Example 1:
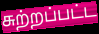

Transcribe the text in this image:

சுற்றப்பட்ட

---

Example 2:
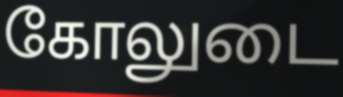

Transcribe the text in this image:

கோலுடை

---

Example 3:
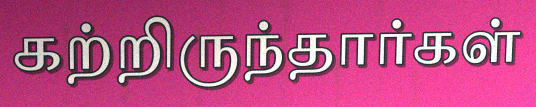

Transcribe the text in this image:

கற்றிருந்தார்கள்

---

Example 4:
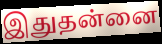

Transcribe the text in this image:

இதுதன்னை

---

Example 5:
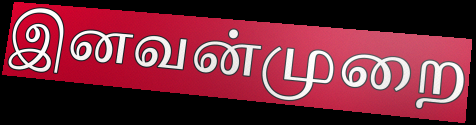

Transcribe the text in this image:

இனவன்முறை